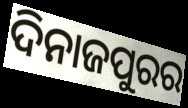
ଦିନାଜପୁରର